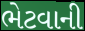
ભેટવાની